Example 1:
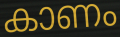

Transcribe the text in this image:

കാണം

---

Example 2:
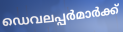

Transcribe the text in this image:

ഡെവലപ്പർമാർക്ക്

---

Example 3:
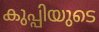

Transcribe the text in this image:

കുപ്പിയുടെ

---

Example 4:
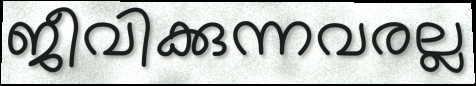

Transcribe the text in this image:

ജീവിക്കുന്നവരല്ല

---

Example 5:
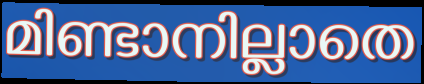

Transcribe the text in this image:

മിണ്ടാനില്ലാതെ